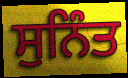
ਸੁਨਿੰਤ